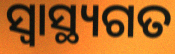
ସ୍ବାସ୍ଥ୍ୟଗତ